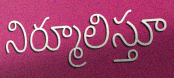
నిర్మూలిస్తూ